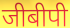
जीबीपी